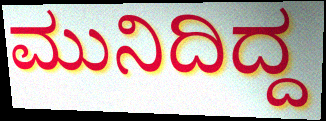
ಮುನಿದಿದ್ದ